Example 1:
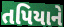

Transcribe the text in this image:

તપિયાને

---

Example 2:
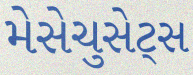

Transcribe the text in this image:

મેસેચુસેટ્સ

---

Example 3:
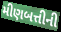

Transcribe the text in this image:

મીણબત્તીની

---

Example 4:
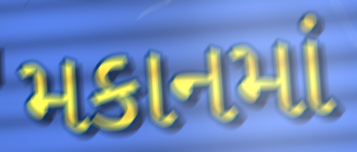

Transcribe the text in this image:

મકાનમાં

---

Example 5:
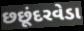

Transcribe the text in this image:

છછૂંદરવેડા